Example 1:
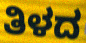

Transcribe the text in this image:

ತಿಳದ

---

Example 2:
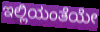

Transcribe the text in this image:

ಇಲ್ಲಿಯಂತೆಯೇ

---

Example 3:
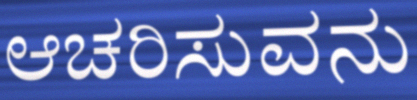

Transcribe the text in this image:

ಆಚರಿಸುವನು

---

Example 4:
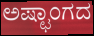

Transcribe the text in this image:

ಅಷ್ಟಾಂಗದ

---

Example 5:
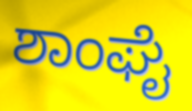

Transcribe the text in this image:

ಶಾಂಘೈ